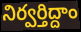
నిర్వర్తిద్దాం